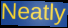
Neatly